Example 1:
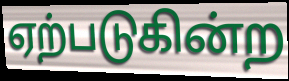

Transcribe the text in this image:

ஏற்படுகின்ற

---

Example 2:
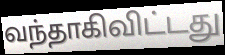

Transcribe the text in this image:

வந்தாகிவிட்டது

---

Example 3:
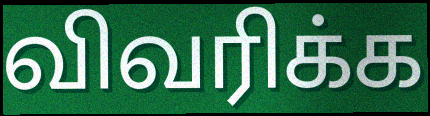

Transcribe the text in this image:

விவரிக்க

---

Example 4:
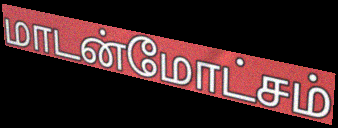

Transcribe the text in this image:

மாடன்மோட்சம்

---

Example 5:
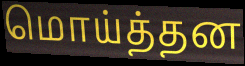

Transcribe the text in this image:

மொய்த்தன